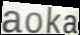
aoka